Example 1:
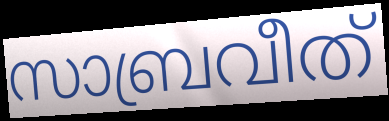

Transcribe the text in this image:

സാബ്രവീത്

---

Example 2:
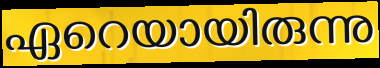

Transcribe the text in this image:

ഏറെയായിരുന്നു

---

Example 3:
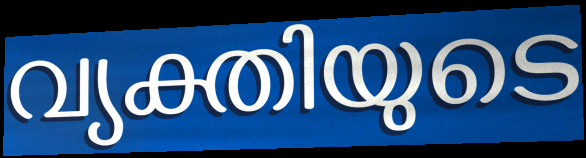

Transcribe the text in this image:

വ്യക്തിയുടെ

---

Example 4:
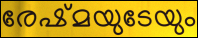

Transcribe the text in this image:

രേഷ്മയുടേയും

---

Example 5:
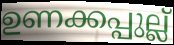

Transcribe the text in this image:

ഉണക്കപ്പുല്ല്